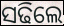
ସଢିଲେ